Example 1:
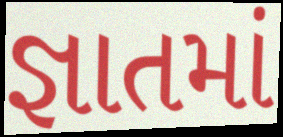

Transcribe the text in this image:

જ્ઞાતમાં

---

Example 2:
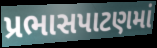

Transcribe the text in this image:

પ્રભાસપાટણમાં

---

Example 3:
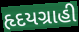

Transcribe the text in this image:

હૃદયગ્રાહી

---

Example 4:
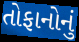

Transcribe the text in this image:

તોફાનોનું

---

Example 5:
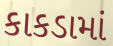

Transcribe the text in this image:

કાકડામાં